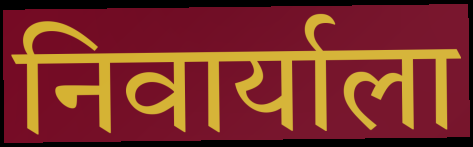
निवार्याला